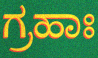
ಗ್ರಹಾಃ